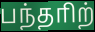
பந்தரிற்